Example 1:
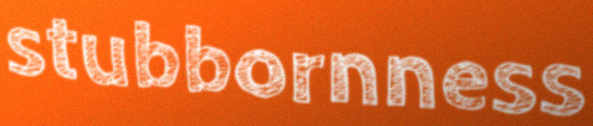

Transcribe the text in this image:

stubbornness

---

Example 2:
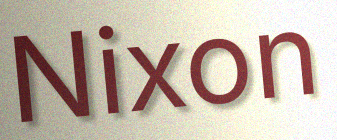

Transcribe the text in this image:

Nixon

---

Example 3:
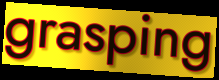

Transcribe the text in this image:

grasping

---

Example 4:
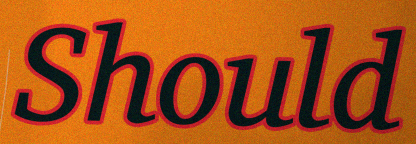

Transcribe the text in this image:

Should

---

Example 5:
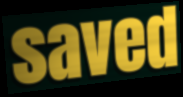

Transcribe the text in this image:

saved